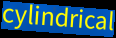
cylindrical